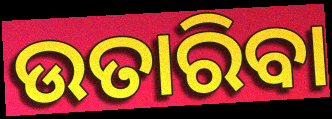
ଉତାରିବା